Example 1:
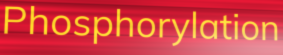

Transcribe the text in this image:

Phosphorylation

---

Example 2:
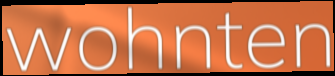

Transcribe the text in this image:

wohnten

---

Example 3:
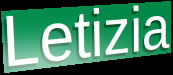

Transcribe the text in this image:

Letizia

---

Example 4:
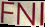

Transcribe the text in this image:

FNI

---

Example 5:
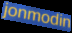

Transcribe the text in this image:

jonmodin